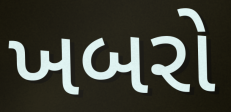
ખબરો